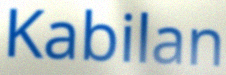
Kabilan